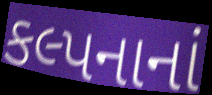
કલ્પનાનાં